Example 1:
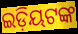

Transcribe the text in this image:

ଇଡ଼ିୟଟଙ୍କ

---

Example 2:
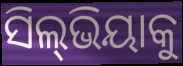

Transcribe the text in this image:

ସିଲ୍‍ଭିୟାକୁ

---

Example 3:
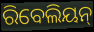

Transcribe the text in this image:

ରିବେଲିୟନ୍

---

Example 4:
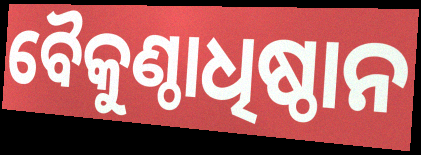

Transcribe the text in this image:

ବୈକୁଣ୍ଠାଧିଷ୍ଠାନ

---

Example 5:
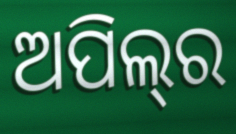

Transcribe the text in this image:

ଅପିଲ୍‌ର